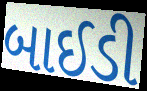
બાઈડી